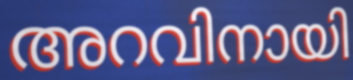
അറവിനായി